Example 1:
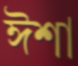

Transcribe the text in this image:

ঈশা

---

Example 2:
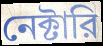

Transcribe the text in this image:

নেক্টারি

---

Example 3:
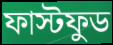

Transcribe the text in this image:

ফাস্টফুড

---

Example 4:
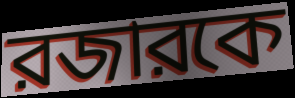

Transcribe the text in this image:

রজারকে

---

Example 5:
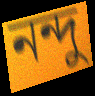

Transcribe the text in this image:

নন্দু